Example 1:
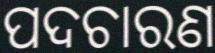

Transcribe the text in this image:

ପଦଚାରଣ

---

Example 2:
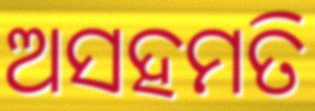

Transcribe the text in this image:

ଅସହମତି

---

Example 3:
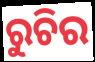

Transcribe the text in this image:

ରୁଚିର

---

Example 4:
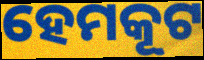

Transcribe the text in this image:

ହେମକୂଟ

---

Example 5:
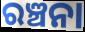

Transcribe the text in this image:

ରଞ୍ଚନା